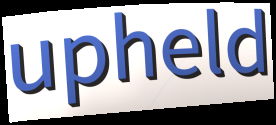
upheld